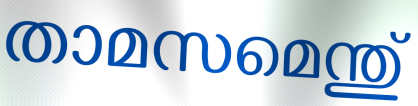
താമസമെന്തു്